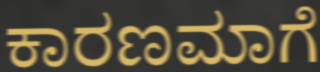
ಕಾರಣಮಾಗೆ